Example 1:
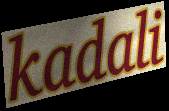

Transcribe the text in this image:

kadali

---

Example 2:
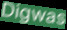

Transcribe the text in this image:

Digwas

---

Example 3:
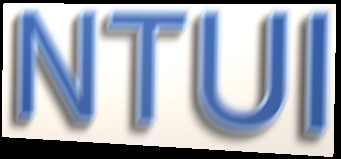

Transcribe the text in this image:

NTUI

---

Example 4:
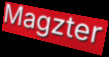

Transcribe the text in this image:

Magzter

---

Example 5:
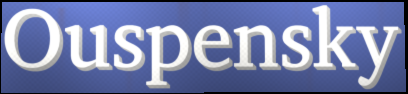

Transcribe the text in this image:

Ouspensky